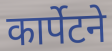
कार्पेटने